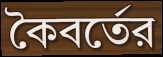
কৈবর্তের